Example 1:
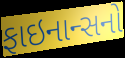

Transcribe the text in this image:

ફાઇનાન્સનો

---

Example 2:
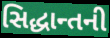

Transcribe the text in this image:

સિદ્ધાન્તની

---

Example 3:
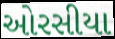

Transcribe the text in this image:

ઓરસીયા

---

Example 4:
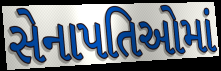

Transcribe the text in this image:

સેનાપતિઓમાં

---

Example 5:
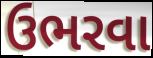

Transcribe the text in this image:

ઉભરવા